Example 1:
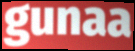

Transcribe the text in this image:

gunaa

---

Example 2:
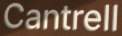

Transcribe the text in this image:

Cantrell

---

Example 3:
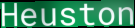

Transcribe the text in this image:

Heuston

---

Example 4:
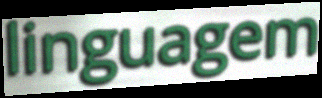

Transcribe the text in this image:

linguagem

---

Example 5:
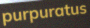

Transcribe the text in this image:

purpuratus